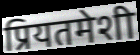
प्रियतमेशी